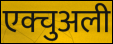
एक्चुअली